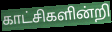
காட்சிகளின்றி